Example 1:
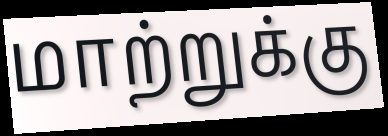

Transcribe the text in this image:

மாற்றுக்கு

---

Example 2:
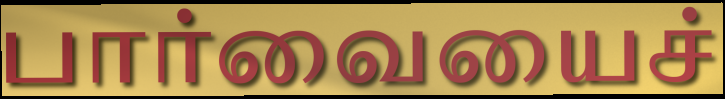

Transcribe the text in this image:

பார்வையைச்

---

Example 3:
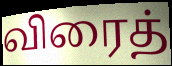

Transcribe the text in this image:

விரைத்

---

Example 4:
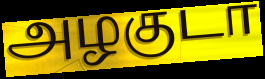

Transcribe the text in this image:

அழகுடா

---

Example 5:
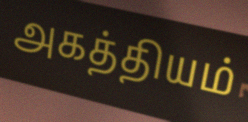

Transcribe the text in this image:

அகத்தியம்